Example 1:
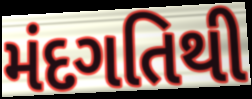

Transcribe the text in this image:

મંદગતિથી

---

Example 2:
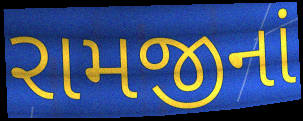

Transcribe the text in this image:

રામજીનાં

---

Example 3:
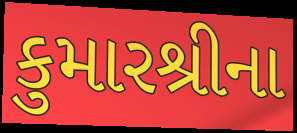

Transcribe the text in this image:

કુમારશ્રીના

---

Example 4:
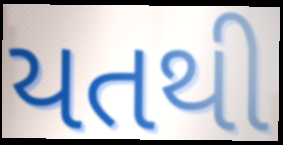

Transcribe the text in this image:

યતથી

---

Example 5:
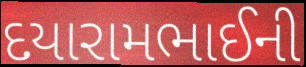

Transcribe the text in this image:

દયારામભાઈની